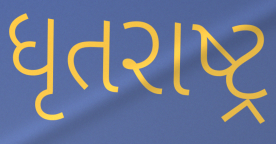
ધૃતરાષ્ટ્ર